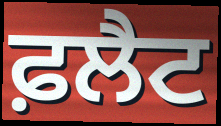
ਫ਼ਲੈਟ